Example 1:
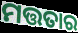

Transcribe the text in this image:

ମତ୍ତତାର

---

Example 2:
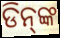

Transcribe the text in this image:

ଡିନ୍‌ଙ୍କ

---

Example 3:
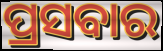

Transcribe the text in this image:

ପ୍ରସବାର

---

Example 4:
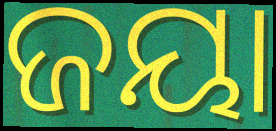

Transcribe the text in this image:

ଜୟା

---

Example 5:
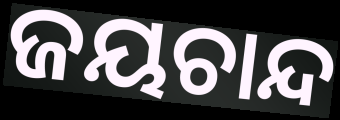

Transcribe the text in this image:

ଜୟଚାନ୍ଦ